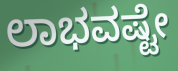
ಲಾಭವಷ್ಟೇ